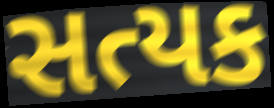
સત્યક